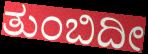
ತುಂಬಿದೀ